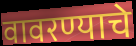
वावरण्याचे